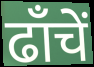
ढाँचें